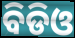
ବିଡିଓ